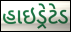
હાઇડ્રેટેડ